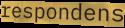
respondens